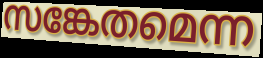
സങ്കേതമെന്ന